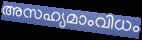
അസഹ്യമാംവിധം